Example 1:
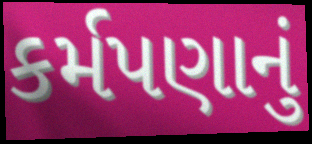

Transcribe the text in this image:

કર્મપણાનું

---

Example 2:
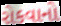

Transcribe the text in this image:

રોકવાનો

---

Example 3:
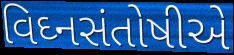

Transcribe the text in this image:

વિઘ્નસંતોષીએ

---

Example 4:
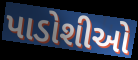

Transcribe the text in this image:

પાડોશીઓ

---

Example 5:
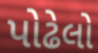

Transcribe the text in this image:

પોઢેલો